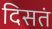
दिसतं